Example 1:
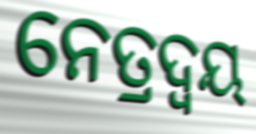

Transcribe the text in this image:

ନେତ୍ରଦ୍ଵୟ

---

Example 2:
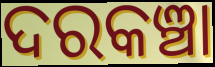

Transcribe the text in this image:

ଦରକଞ୍ଚା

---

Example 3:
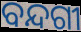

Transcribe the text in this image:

ବନ୍ଦଗୀ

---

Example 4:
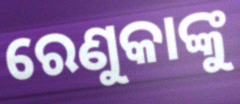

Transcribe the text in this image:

ରେଣୁକାଙ୍କୁ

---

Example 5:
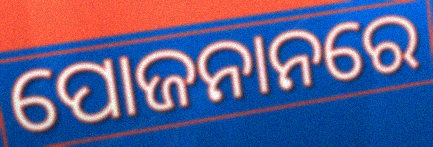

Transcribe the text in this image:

ପୋଜନାନରେ